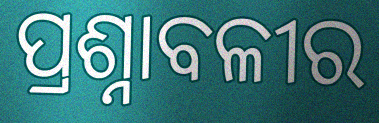
ପ୍ରଶ୍ନାବଳୀର